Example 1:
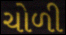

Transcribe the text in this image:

ચોળી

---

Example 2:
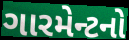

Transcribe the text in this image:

ગારમેન્ટનો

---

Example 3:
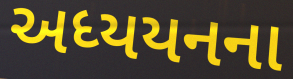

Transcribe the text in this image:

અધ્યયનના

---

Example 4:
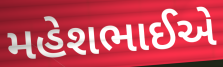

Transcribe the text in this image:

મહેશભાઈએ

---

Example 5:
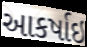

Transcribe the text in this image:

આકર્ષાઇ